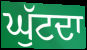
ਘੁੱਟਦਾ